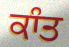
ਕਾੰਤ